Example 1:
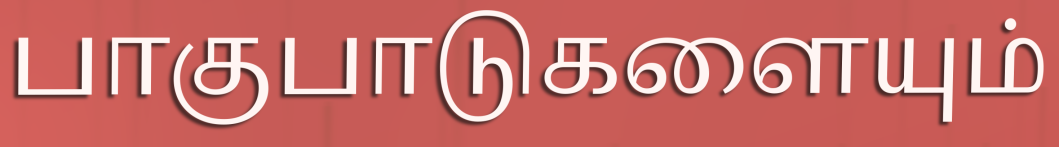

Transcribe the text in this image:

பாகுபாடுகளையும்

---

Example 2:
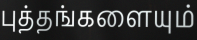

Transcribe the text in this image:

புத்தங்களையும்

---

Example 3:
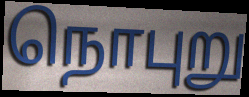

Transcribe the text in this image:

நொபுறு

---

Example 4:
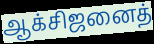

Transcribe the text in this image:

ஆக்சிஜனைத்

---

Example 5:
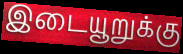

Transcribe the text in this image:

இடையூறுக்கு